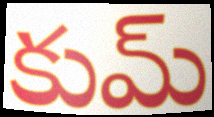
కుమ్